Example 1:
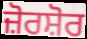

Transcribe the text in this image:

ਜ਼ੋਰਸ਼ੋਰ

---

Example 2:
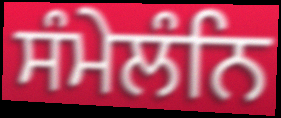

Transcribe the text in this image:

ਸੰਮੇਲੰਨਿ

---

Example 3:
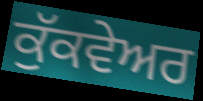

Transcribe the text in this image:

ਕੁੱਕਵੇਅਰ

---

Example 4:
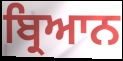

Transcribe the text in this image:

ਬ੍ਰਿਆਨ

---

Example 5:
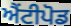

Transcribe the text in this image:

ਐਂਟੀਪੋਡ